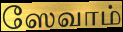
ஸேவாம்